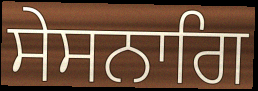
ਸੇਸਨਾਗਿ